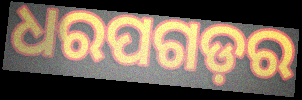
ଧରପଗଡ଼ର